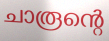
ചാരൂന്റെ